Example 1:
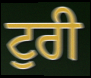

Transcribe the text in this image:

ਟੁਰੀ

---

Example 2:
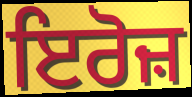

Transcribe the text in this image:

ਇਰੋਜ਼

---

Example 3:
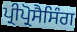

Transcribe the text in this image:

ਪ੍ਰੀਪ੍ਰੋਸੈਸਿੰਗ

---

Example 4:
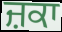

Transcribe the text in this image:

ਜ਼ਕਾ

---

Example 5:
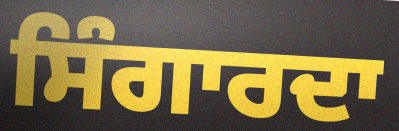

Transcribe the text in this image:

ਸਿੰਗਾਰਦਾ